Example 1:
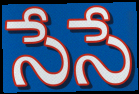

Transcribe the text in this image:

సేసే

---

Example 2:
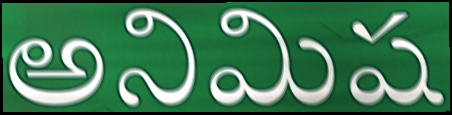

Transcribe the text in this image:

అనిమిష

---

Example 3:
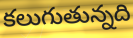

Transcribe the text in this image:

కలుగుతున్నది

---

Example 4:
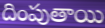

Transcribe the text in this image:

దింపుతాయి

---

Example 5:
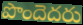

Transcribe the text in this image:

పొందెదరు